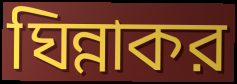
ঘিন্নাকর